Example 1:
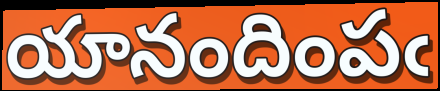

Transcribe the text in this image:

యానందింపఁ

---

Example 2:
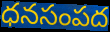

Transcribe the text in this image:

ధనసంపద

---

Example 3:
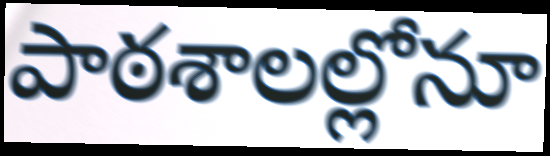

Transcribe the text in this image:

పాఠశాలల్లోనూ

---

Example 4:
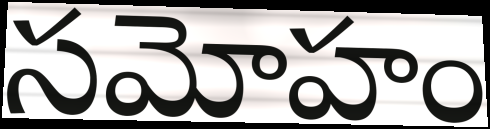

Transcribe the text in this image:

సమోహం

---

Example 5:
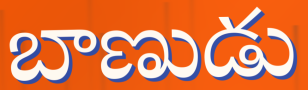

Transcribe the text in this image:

బాణుడు